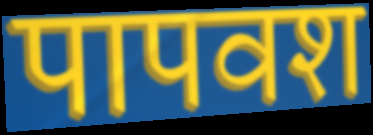
पापवश